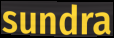
sundra